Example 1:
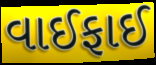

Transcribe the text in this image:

વાઈફાઈ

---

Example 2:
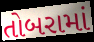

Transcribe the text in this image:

તોબરામાં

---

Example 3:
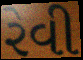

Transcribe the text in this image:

રેવી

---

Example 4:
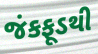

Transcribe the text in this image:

જંકફૂડથી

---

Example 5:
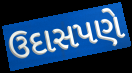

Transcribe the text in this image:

ઉદાસપણે